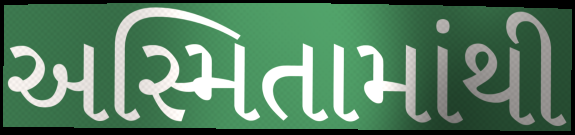
અસ્મિતામાંથી